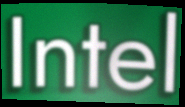
Intel